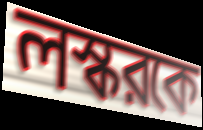
লস্করকে